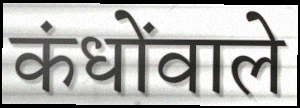
कंधोंवाले